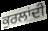
ਕੁਰਲਾਂਦੀ